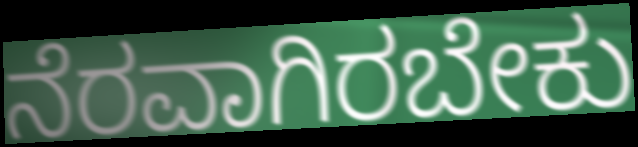
ನೆರವಾಗಿರಬೇಕು